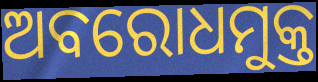
ଅବରୋଧମୁକ୍ତ